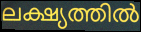
ലക്ഷ്യത്തിൽ